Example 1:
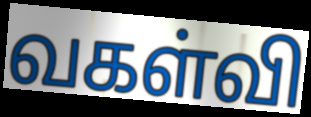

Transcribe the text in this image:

வகள்வி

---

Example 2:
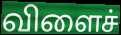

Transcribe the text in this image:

விளைச்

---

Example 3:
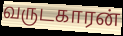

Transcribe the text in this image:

வருடகாரன்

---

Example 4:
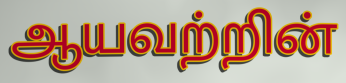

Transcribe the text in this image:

ஆயவற்றின்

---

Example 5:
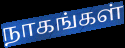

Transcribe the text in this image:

நாகங்கள்